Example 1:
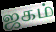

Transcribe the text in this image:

ஜகம்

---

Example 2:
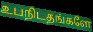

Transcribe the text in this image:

உபநிடதங்களே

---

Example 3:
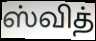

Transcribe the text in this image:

ஸ்வித்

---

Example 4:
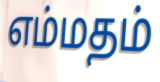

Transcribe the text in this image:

எம்மதம்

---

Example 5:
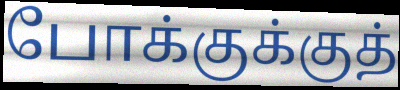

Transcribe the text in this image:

போக்குக்குத்